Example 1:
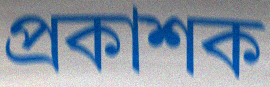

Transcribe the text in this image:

প্ৰকাশক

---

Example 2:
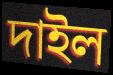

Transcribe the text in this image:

দাইল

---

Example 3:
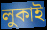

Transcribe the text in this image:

লুকাই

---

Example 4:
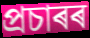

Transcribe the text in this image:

প্ৰচাৰৰ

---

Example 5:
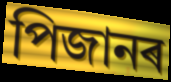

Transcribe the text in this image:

পিজানৰ